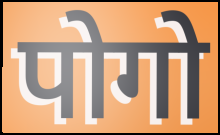
पोगो